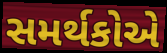
સમર્થકોએ